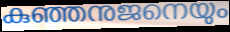
കുഞ്ഞനുജനെയും